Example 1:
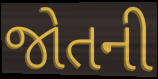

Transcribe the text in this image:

જોતની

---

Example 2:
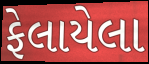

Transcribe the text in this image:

ફેલાયેલા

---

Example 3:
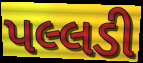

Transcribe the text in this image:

પલ્લડી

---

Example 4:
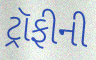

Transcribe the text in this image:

ટ્રૉફીની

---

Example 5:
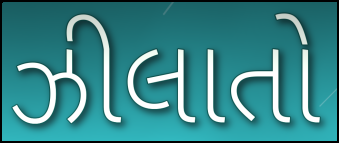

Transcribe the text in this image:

ઝીલાતો